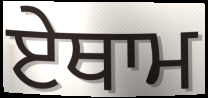
ਏਥਾਮ